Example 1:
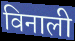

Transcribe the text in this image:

विनाली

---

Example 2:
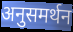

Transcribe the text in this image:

अनुसमर्थन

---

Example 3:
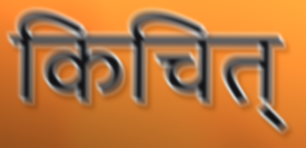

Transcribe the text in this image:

किचित्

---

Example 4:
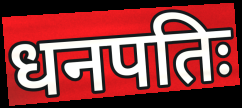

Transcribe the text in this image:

धनपतिः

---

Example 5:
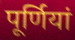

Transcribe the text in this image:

पूर्णियां